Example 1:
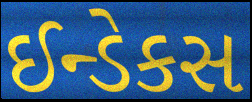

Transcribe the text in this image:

ઈન્ડેકસ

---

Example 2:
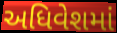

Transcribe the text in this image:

અધિવેશમાં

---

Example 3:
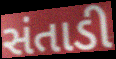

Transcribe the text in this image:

સંતાડી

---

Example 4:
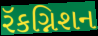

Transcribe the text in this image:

રૅકગ્નિશન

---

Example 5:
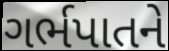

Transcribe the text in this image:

ગર્ભપાતને